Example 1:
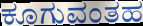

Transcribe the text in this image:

ಕೂಗುವಂತಹ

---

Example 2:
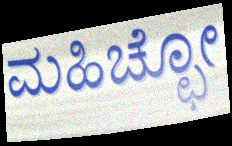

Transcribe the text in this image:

ಮಹಿಚ್ಛೋ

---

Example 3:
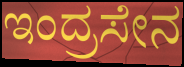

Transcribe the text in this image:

ಇಂದ್ರಸೇನ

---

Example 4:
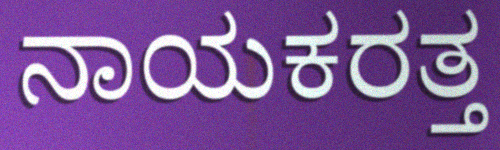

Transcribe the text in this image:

ನಾಯಕರತ್ತ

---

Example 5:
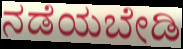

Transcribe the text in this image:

ನಡೆಯಬೇಡಿ